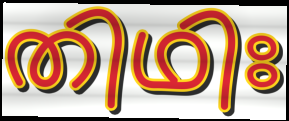
തിഥിഃ